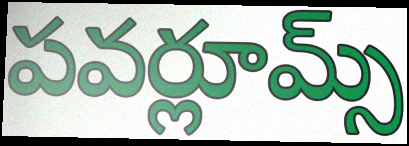
పవర్లూమ్స్